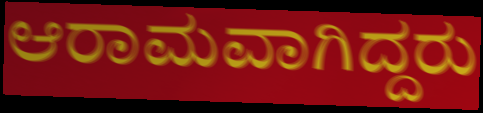
ಆರಾಮವಾಗಿದ್ದರು